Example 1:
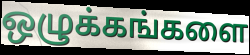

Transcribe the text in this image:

ஒழுக்கங்களை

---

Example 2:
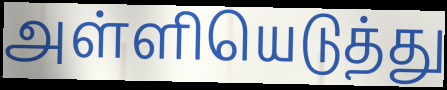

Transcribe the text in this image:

அள்ளியெடுத்து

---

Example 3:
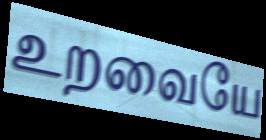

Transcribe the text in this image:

உறவையே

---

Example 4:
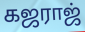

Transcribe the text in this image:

கஜராஜ்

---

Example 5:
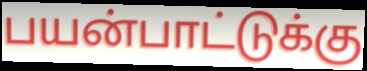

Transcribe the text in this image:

பயன்பாட்டுக்கு